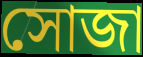
সোজা